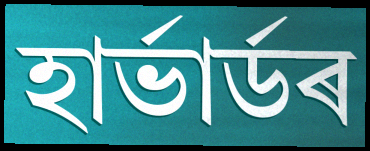
হাৰ্ভাৰ্ডৰ